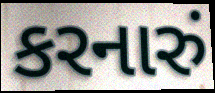
કરનારું